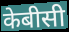
केबीसी